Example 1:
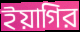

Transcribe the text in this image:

ইয়াগির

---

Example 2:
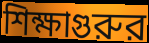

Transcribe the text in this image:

শিক্ষাগুরুর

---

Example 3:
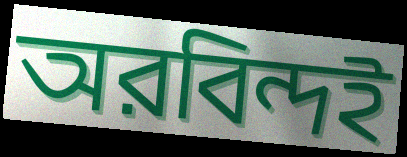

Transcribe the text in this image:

অরবিন্দই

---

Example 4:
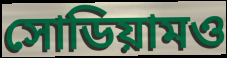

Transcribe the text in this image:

সোডিয়ামও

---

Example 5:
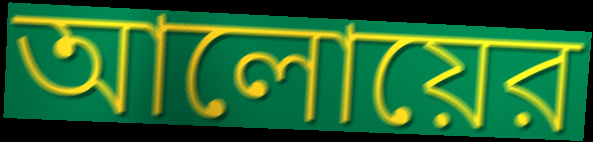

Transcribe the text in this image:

আলোয়ের